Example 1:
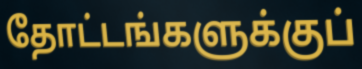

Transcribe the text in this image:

தோட்டங்களுக்குப்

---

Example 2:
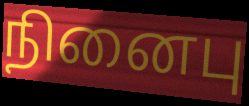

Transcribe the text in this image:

நினைபு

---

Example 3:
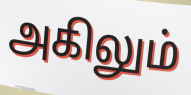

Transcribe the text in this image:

அகிலும்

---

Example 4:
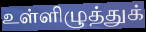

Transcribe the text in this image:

உள்ளிழுத்துக்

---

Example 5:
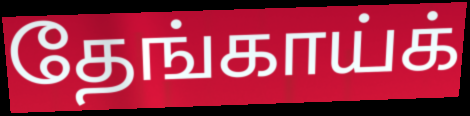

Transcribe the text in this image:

தேங்காய்க்